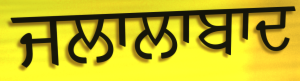
ਜਲਾਲਾਬਾਦ